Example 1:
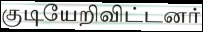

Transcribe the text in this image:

குடியேறிவிட்டனர்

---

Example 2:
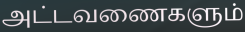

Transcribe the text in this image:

அட்டவணைகளும்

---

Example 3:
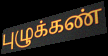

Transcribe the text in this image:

புழுக்கண்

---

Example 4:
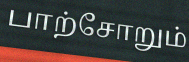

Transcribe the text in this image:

பாற்சோறும்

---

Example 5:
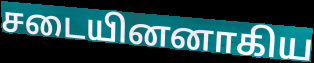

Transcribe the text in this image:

சடையினனாகிய